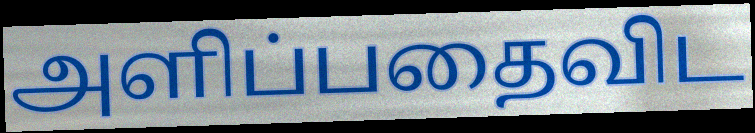
அளிப்பதைவிட